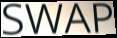
SWAP